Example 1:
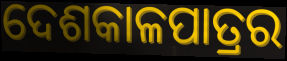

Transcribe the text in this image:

ଦେଶକାଳପାତ୍ରର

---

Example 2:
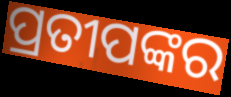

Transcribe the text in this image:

ପ୍ରତୀପଙ୍କର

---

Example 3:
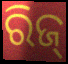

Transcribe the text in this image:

ରିଜ୍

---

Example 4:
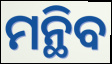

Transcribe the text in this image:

ମନ୍ଥିବ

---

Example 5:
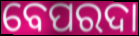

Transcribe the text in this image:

ବେପରଦା